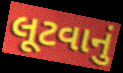
લૂટવાનું